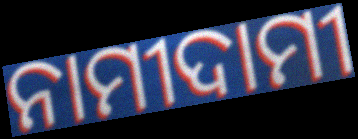
ନାମୀଦାମୀ